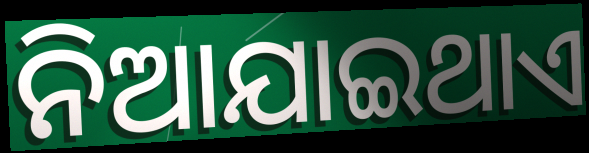
ନିଆଯାଇଥାଏ